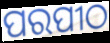
ପରପୀଠ